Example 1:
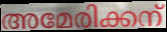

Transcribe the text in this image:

അമേരിക്കന്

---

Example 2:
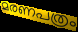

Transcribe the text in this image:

മരണപത്രം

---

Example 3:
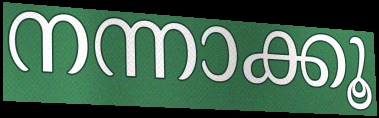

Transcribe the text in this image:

നന്നാക്കൂ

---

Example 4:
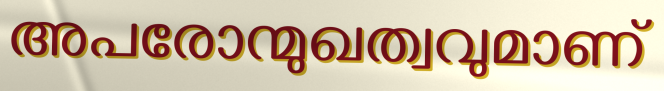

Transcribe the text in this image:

അപരോന്മുഖത്വവുമാണ്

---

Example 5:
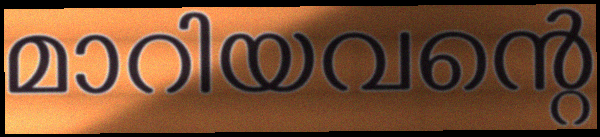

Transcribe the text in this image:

മാറിയവന്റെ